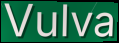
Vulva